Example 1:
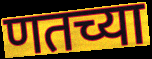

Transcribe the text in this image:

णतच्या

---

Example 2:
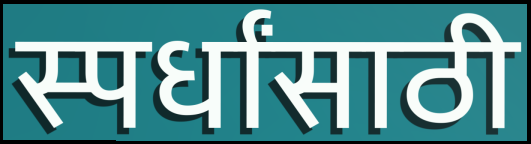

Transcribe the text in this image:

स्पर्धांसाठी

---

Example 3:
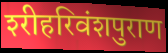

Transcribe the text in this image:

श्रीहरिवंशपुराण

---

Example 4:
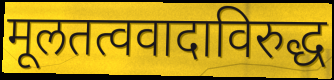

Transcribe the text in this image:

मूलतत्ववादाविरुद्ध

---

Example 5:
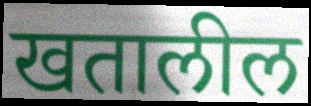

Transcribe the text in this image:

खतालील